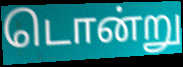
டொன்று